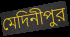
মেদিনীপুর